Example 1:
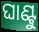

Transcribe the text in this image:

ଘାଣ୍ଟୁ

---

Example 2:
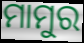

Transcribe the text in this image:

ମାମୁର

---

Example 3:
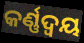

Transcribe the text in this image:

କର୍ଣ୍ଣଦ୍ୱୟ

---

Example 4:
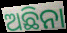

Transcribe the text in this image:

ଅଛିନା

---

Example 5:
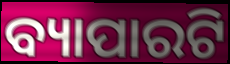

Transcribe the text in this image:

ବ୍ୟାପାରଟି